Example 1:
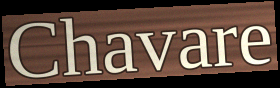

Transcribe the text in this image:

Chavare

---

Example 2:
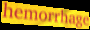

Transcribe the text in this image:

hemorrhage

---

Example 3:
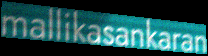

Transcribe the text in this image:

mallikasankaran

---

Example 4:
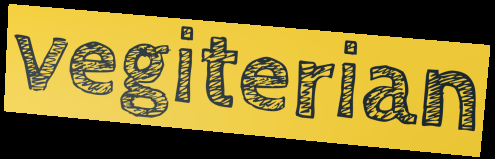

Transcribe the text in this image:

vegiterian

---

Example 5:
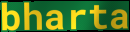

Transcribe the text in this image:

bharta